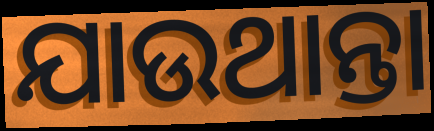
ଯାଉଥାନ୍ତା